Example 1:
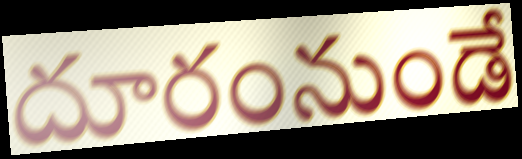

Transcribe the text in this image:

దూరంనుండే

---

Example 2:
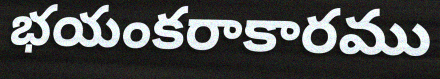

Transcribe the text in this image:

భయంకరాకారము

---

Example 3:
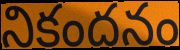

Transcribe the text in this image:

నికందనం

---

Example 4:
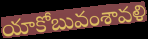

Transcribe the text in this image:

యాకోబువంశావళి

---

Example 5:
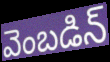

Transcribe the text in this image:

వెంబడిన్